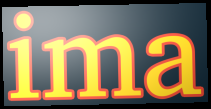
ima